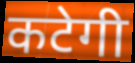
कटेगी